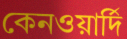
কেনওয়ার্দি